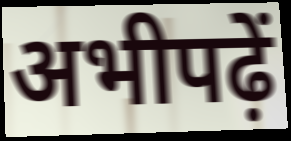
अभीपढ़ें